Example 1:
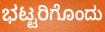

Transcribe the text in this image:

ಭಟ್ಟರಿಗೊಂದು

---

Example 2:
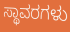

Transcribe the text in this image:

ಸ್ಥಾವರಗಳು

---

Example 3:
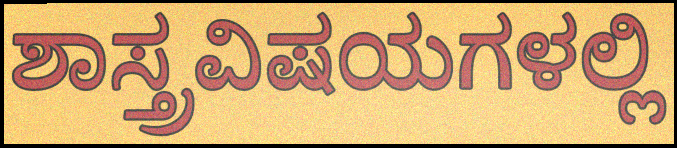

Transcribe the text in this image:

ಶಾಸ್ತ್ರವಿಷಯಗಳಲ್ಲಿ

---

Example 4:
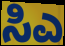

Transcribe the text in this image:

ಸಿಎ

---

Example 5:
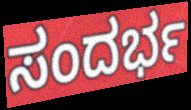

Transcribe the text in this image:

ಸಂದರ್ಭ